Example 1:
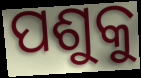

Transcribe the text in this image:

ପଶୁକୁ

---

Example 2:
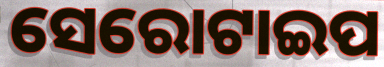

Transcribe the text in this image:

ସେରୋଟାଇପ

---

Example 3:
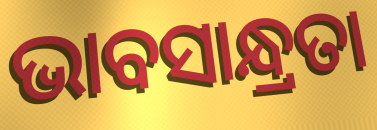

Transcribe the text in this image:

ଭାବସାନ୍ଧ୍ରତା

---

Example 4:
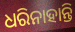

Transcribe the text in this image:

ଧରିନାହାନ୍ତି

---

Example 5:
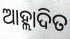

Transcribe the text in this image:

ଆହ୍ଲାଦିତ